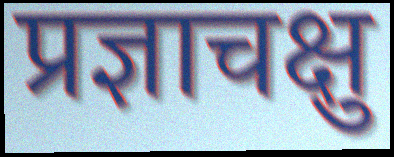
प्रज्ञाचक्षु